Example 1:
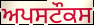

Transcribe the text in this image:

ਅਪਸਟੌਕਸ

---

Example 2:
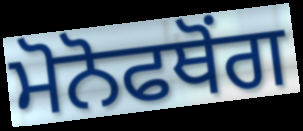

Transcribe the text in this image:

ਮੋਨੋਫਥੋਂਗ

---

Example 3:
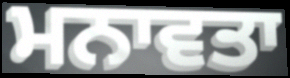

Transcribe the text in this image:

ਮਨਾਵਤਾ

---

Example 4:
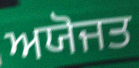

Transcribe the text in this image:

ਅਯੋਜਤ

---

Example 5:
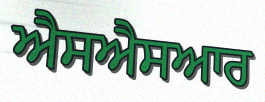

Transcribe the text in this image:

ਐਸਐਸਆਰ